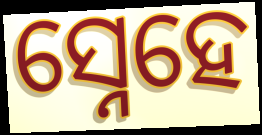
ସ୍ନେହେ